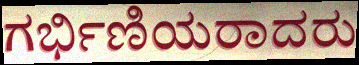
ಗರ್ಭಿಣಿಯರಾದರು